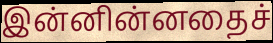
இன்னின்னதைச்